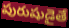
పురుషుడైతే